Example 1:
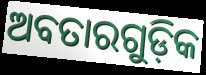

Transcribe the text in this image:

ଅବତାରଗୁଡ଼ିକ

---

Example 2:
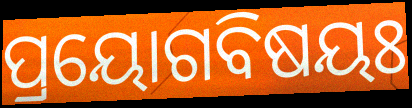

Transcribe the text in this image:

ପ୍ରୟୋଗବିଷୟଃ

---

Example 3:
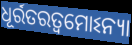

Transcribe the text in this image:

ଧୂର୍ରତରତ୍ୱମୋଽନ୍ୟା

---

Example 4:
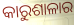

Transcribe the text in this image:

କାରୁଶାଳାର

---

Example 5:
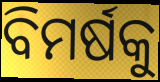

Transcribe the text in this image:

ବିମର୍ଷକୁ